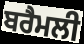
ਬਰੈਮਲੀ